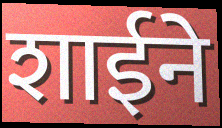
शाईने